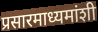
प्रसारमाध्यमांशी